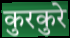
कुरकुरे